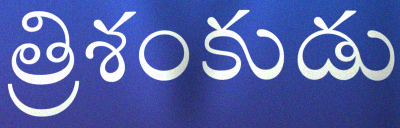
త్రిశంకుడు